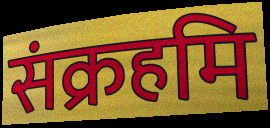
संक्रहमि